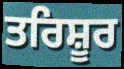
ਤਰਿਸ਼ੂਰ